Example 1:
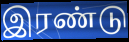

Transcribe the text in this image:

இரண்டு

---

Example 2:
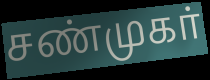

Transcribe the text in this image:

சண்முகர்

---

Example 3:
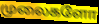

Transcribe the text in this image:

முலைகளோ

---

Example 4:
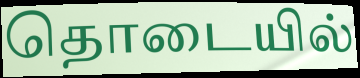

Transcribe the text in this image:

தொடையில்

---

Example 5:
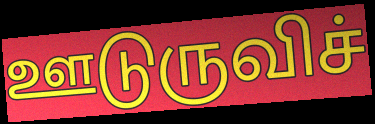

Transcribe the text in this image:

ஊடுருவிச்